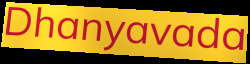
Dhanyavada